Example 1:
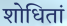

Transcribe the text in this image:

शोधितां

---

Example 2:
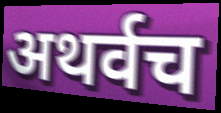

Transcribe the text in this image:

अथर्वच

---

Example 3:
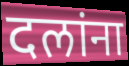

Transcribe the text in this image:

दलांना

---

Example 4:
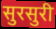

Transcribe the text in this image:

सुरसुरी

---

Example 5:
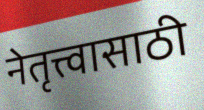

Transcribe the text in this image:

नेतृत्त्वासाठी